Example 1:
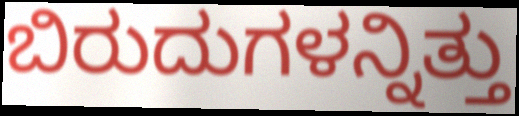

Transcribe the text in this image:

ಬಿರುದುಗಳನ್ನಿತ್ತು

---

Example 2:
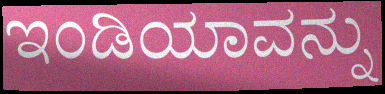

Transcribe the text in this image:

ಇಂಡಿಯಾವನ್ನು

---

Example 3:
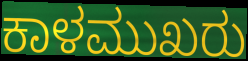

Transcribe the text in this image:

ಕಾಳಮುಖರು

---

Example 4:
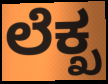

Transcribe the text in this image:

ಲೆಕ್ಖ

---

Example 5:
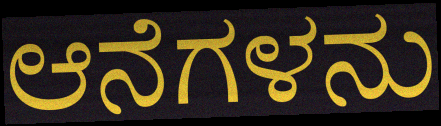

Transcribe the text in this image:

ಆನೆಗಳನು